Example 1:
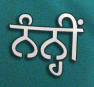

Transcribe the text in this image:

ਨੰਨ੍ਹੀਂ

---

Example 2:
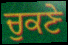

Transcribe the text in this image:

ਚੁਕਣੇ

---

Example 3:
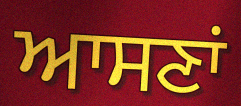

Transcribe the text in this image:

ਆਸਣਾਂ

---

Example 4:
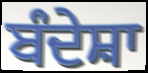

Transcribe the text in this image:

ਬੰਦੇਸ਼ਾ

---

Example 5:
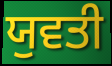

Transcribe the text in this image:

ਯੁਵਤੀ